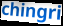
chingri